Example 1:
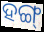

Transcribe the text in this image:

ହଙ୍ଗ୍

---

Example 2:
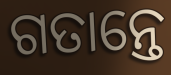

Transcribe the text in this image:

ଗତାନ୍ତେ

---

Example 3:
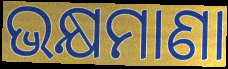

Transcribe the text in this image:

ଭକ୍ଷମାଣା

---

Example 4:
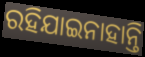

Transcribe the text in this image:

ରହିଯାଇନାହାନ୍ତି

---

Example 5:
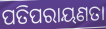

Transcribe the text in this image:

ପତିପରାୟଣତା